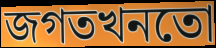
জগতখনতো